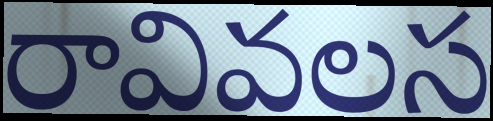
రావివలస